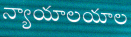
న్యాయాలయాల